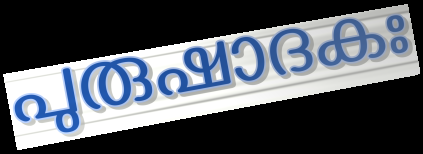
പുരുഷാദകഃ